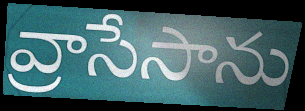
వ్రాసేసాను